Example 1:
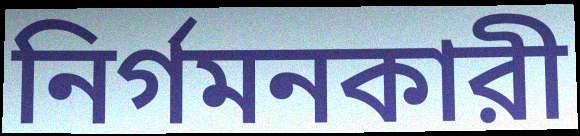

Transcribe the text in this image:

নির্গমনকারী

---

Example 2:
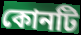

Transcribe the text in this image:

কোনটি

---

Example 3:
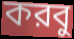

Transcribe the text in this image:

করবু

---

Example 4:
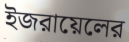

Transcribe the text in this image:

ইজরায়েলের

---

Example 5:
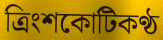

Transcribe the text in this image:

ত্রিংশকোটিকণ্ঠ